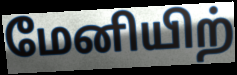
மேனியிற்